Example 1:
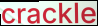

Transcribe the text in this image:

crackle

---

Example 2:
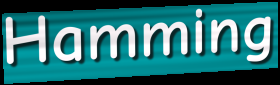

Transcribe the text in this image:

Hamming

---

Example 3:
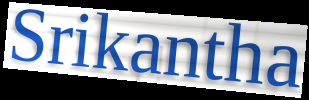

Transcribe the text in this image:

Srikantha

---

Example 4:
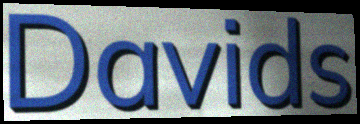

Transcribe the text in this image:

Davids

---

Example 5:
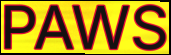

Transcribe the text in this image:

PAWS